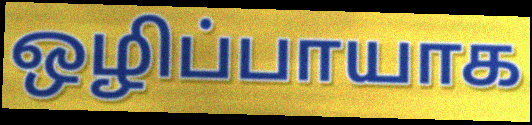
ஒழிப்பாயாக